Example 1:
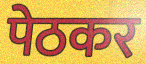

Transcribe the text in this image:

पेठकर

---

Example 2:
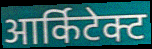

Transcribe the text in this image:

आर्किटेक्ट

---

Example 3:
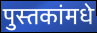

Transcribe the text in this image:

पुस्तकांमधे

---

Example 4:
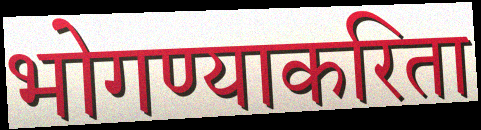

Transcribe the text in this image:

भोगण्याकरिता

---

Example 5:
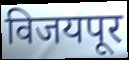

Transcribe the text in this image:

विजयपूर